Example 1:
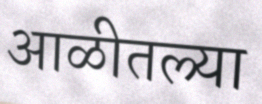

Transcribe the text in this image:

आळीतल्या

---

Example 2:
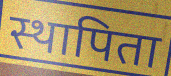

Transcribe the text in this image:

स्थापिता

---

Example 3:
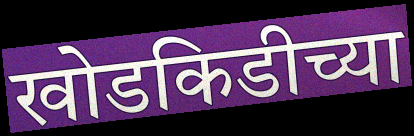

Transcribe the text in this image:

खोडकिडीच्या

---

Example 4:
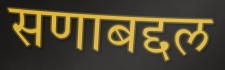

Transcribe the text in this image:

सणाबद्दल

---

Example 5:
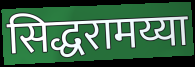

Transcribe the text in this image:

सिद्धरामय्या